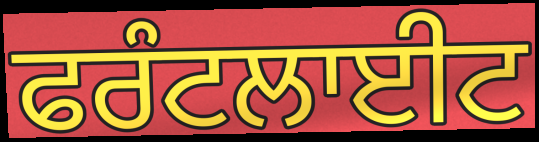
ਫਰੰਟਲਾਈਟ